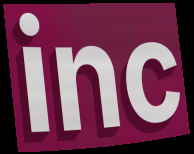
inc